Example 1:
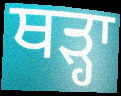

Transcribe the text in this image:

ਥੜ੍ਹਾ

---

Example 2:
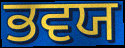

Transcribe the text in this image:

ਭਵਯ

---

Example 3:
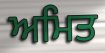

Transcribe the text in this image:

ਅਮਿਤ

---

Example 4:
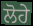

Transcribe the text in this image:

ਲੋਹੇ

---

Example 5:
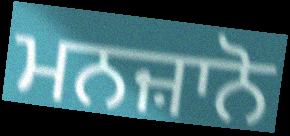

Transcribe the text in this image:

ਮਨਜ਼ਾਨੋ